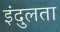
इंदुलता